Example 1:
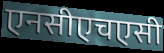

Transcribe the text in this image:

एनसीएचएसी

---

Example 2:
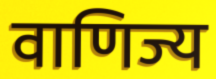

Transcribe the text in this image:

वाणिज्य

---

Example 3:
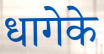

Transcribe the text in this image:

धागेके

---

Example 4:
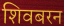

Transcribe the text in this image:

शिवबरन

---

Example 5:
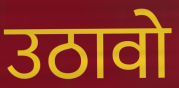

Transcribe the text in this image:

उठावो